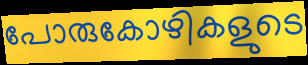
പോരുകോഴികളുടെ